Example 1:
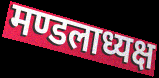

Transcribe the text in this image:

मण्डलाध्यक्ष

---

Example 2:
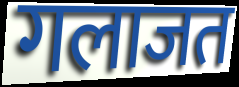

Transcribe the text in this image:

गलाजत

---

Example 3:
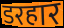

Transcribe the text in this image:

डरहार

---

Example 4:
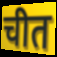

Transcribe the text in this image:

चीत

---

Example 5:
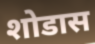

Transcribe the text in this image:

शोडास